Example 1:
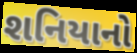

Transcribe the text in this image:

શનિયાનો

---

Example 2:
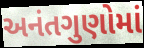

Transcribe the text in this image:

અનંતગુણોમાં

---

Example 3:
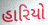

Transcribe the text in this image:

હારિયો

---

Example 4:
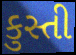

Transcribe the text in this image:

કુસ્તી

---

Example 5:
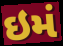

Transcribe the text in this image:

ઇમં